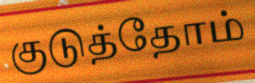
குடுத்தோம்